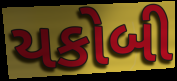
યકોબી